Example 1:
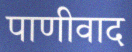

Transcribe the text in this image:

पाणीवाद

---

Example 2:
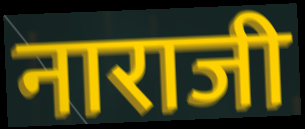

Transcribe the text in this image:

नाराजी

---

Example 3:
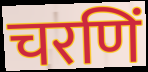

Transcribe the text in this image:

चरणिं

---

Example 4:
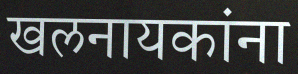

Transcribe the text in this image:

खलनायकांना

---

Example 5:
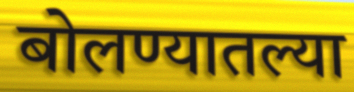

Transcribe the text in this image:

बोलण्यातल्या